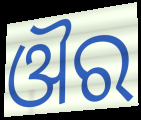
ଔର